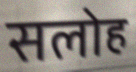
सलोह